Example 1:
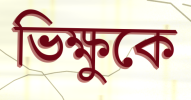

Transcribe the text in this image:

ভিক্ষুকে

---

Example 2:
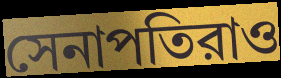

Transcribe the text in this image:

সেনাপতিরাও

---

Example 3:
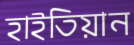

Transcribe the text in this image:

হাইতিয়ান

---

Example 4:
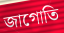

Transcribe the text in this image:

জাগোতি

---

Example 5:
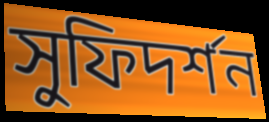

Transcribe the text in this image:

সুফিদর্শন